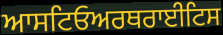
ਆਸਟਿਓਅਰਥਰਾਈਟਿਸ